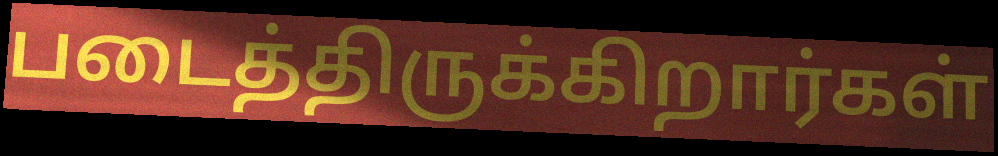
படைத்திருக்கிறார்கள்